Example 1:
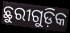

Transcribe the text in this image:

ଛୁରୀଗୁଡ଼ିକ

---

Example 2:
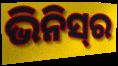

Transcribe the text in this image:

ଭିନିସ୍‌ର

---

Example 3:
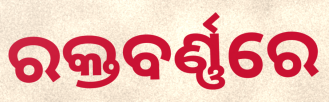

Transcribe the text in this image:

ରକ୍ତବର୍ଣ୍ଣରେ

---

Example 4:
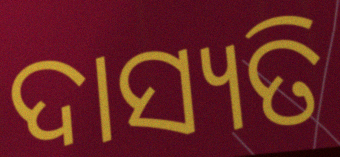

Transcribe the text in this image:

ଦାସ୍ୟତି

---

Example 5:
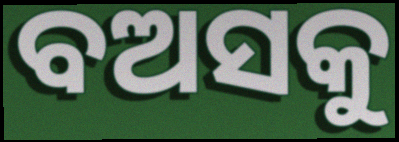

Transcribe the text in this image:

ବଅସକୁ